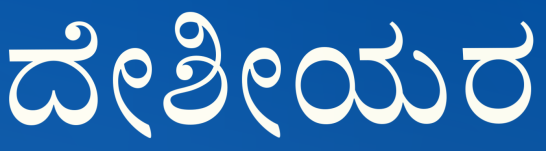
ದೇಶೀಯರ